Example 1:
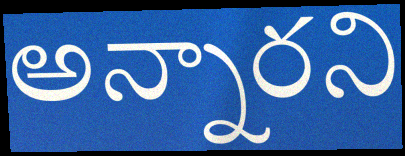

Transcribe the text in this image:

అన్నారని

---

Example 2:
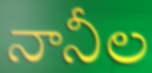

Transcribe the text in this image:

నానీల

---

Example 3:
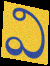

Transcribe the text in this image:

వి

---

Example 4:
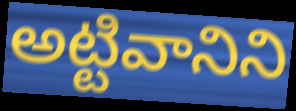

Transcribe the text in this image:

అట్టివానిని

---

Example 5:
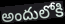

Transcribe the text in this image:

అందులోకి